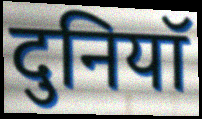
दुनियॉ